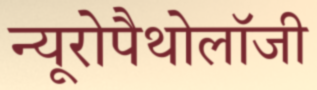
न्यूरोपैथोलॉजी